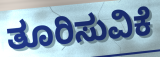
ತೂರಿಸುವಿಕೆ